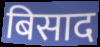
बिसाद